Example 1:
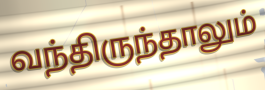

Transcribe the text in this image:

வந்திருந்தாலும்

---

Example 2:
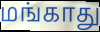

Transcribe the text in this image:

மங்காது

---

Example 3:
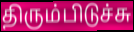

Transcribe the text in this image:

திரும்பிடுச்சு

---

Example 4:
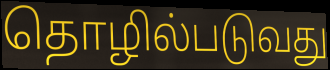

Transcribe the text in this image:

தொழில்படுவது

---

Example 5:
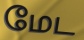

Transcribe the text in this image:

மேட